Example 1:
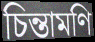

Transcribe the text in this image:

চিন্তামণি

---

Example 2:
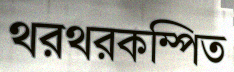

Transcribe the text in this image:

থরথরকম্পিত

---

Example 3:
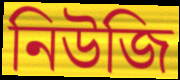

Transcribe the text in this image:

নিউজি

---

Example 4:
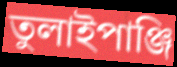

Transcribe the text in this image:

তুলাইপাঞ্জি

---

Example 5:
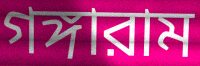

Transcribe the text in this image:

গঙ্গারাম